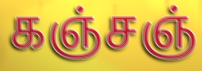
கஞ்சஞ்